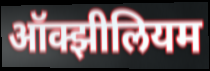
ऑक्झीलियम